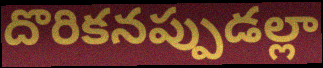
దొరికనప్పుడల్లా